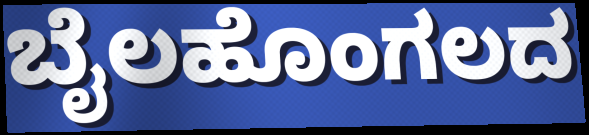
ಬೈಲಹೊಂಗಲದ